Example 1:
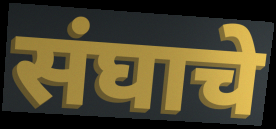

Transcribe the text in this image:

संघाचे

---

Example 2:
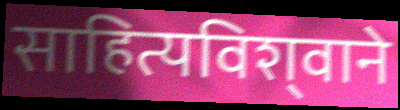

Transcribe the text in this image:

साहित्यविश्वाने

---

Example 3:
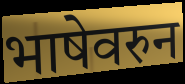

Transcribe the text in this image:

भाषेवरुन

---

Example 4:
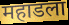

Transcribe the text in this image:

महाडला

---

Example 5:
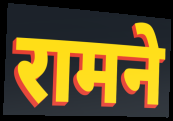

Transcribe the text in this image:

रामने